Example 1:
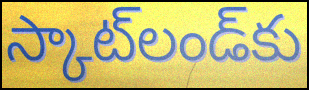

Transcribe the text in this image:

స్కాట్‌లండ్‌కు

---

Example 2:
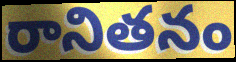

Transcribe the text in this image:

రానితనం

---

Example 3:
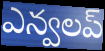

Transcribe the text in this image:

ఎన్వలప్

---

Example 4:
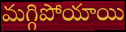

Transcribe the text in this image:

మగ్గిపోయాయి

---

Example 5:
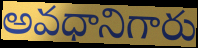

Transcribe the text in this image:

అవధానిగారు